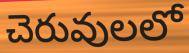
చెరువులలో